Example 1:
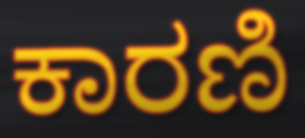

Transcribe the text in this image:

ಕಾರಣಿ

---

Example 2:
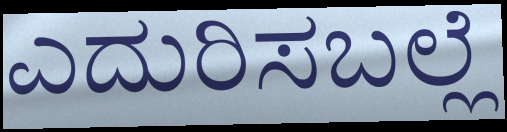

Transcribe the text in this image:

ಎದುರಿಸಬಲ್ಲೆ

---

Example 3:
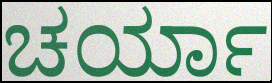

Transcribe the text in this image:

ಚರ್ಯಾ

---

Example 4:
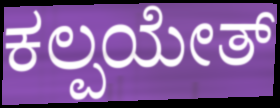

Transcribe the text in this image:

ಕಲ್ಪಯೇತ್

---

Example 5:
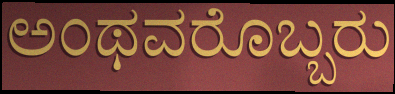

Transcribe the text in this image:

ಅಂಥವರೊಬ್ಬರು